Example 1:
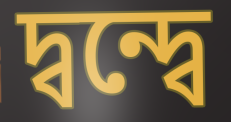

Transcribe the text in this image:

দ্বন্দ্বে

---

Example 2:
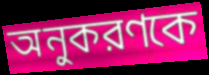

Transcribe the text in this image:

অনুকরণকে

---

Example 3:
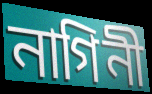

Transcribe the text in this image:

নাগিনী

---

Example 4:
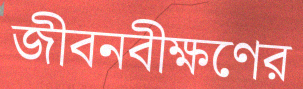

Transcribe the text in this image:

জীবনবীক্ষণের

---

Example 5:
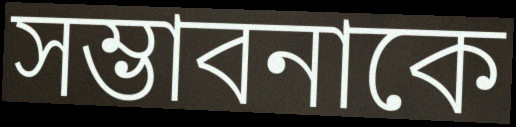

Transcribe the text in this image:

সম্ভাবনাকে